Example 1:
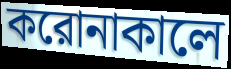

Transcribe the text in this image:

করোনাকালে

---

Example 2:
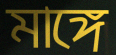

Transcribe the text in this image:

মাঙ্গে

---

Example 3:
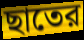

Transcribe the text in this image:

ছাতের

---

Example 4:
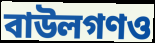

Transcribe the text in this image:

বাউলগণও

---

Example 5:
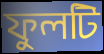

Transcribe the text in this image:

ফুলটি